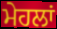
ਮੇਹਲਾਂ